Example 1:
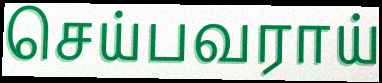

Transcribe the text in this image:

செய்பவராய்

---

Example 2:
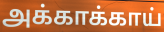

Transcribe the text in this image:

அக்காக்காய்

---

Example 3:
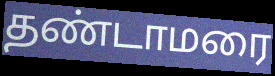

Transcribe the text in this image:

தண்டாமரை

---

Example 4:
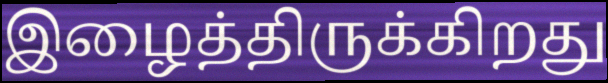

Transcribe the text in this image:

இழைத்திருக்கிறது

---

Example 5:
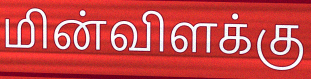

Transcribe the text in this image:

மின்விளக்கு